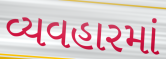
વ્યવહારમાં